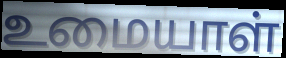
உமையாள்